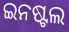
ଇନଷ୍ଟଲ